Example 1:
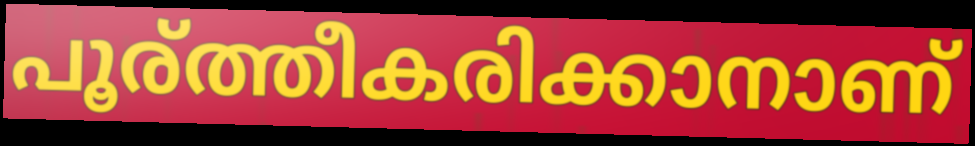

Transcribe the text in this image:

പൂര്ത്തീകരിക്കാനാണ്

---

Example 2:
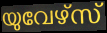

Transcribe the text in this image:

യുവേഴ്സ്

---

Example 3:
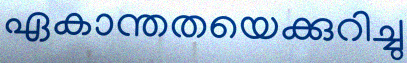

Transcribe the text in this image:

ഏകാന്തതയെക്കുറിച്ചു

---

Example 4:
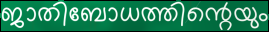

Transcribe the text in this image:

ജാതിബോധത്തിന്റെയും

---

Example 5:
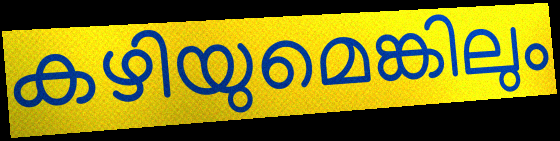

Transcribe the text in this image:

കഴിയുമെങ്കിലും